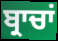
ਬ੍ਰਾਚਾਂ